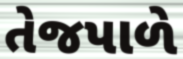
તેજપાળે